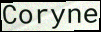
Coryne